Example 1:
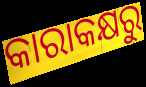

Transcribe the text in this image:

କାରାକକ୍ଷରୁ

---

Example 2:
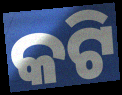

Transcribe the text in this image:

କଟି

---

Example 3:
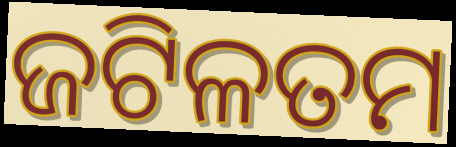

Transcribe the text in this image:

ଜଟିଳତମ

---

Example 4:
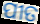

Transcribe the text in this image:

ପୀତ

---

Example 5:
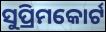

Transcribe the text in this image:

ସୁପ୍ରିମକୋର୍ଟ